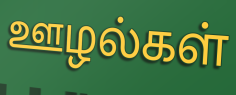
ஊழல்கள்